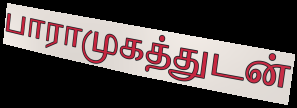
பாராமுகத்துடன்